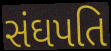
સંઘપતિ